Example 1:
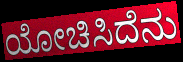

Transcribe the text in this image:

ಯೋಚಿಸಿದೆನು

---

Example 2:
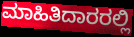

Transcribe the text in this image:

ಮಾಹಿತಿದಾರರಲ್ಲಿ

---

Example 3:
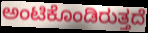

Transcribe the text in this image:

ಅಂಟಿಕೊಂಡಿರುತ್ತದೆ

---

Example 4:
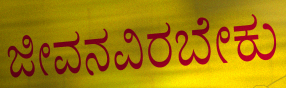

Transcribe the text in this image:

ಜೀವನವಿರಬೇಕು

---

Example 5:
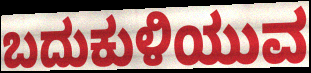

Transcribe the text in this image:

ಬದುಕುಳಿಯುವ